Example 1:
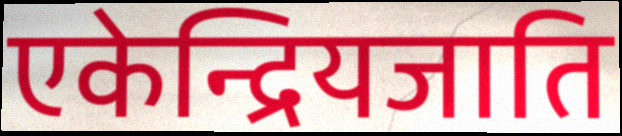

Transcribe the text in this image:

एकेन्द्रियजाति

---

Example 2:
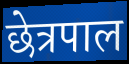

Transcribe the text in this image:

छेत्रपाल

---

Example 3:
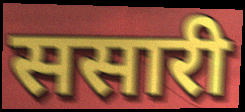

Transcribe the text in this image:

ससारी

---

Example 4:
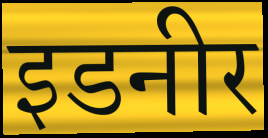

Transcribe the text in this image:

इडनीर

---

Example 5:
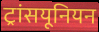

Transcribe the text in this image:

ट्रांसयूनियन